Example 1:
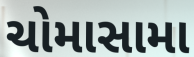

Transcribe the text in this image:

ચોમાસામા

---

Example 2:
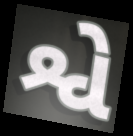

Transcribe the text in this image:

શ્વે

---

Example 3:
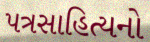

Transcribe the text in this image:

પત્રસાહિત્યનો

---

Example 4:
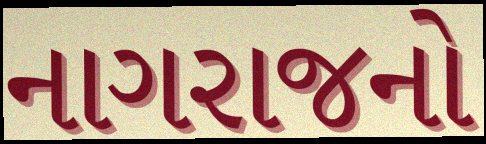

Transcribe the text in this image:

નાગરાજનો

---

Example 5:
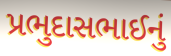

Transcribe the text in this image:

પ્રભુદાસભાઈનું